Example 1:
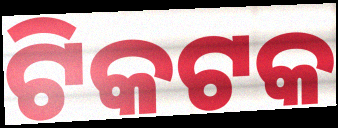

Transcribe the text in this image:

ଟିକଟକ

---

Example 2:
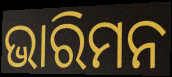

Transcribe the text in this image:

ଭାରିମନ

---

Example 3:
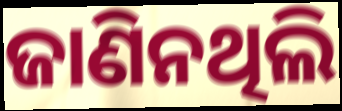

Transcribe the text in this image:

ଜାଣିନଥିଲି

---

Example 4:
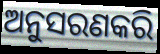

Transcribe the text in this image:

ଅନୁସରଣକରି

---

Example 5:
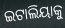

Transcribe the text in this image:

ଇଟାଲିୟାକୁ